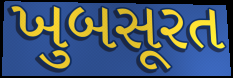
ખુબસૂરત